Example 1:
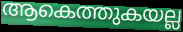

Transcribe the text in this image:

ആകെത്തുകയല്ല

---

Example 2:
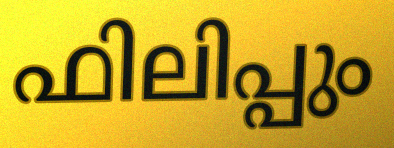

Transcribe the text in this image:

ഫിലിപ്പും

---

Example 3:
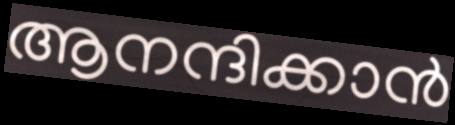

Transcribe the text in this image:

ആനന്ദിക്കാൻ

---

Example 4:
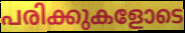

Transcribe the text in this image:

പരിക്കുകളോടെ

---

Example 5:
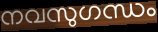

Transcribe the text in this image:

നവസുഗന്ധം